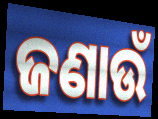
ଜଣାଉଁ